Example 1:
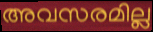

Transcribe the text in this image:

അവസരമില്ല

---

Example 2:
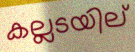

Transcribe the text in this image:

കല്ലടയില്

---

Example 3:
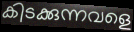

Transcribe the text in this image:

കിടക്കുന്നവളെ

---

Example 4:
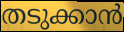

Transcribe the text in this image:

തടുക്കാൻ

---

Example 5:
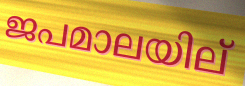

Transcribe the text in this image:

ജപമാലയില്